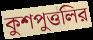
কুশপুত্তলির